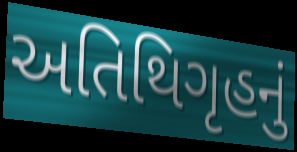
અતિથિગૃહનું